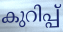
കുറിപ്പ്